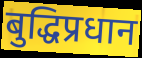
बुद्धिप्रधान